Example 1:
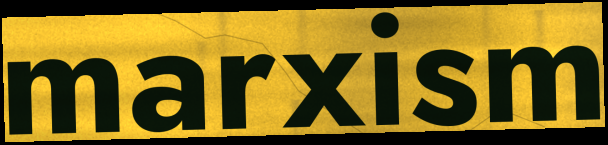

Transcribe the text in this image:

marxism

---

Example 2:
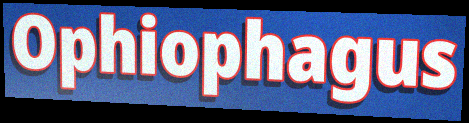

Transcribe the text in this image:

Ophiophagus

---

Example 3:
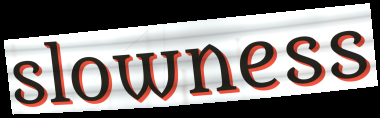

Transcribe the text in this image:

slowness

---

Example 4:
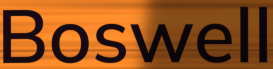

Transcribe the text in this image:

Boswell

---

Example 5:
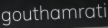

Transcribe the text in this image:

gouthamrati